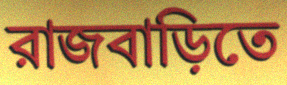
রাজবাড়িতে